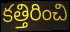
కత్తిరించి